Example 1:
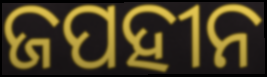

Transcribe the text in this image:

ଜପହୀନ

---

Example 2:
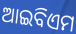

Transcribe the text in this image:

ଆଇବିଏମ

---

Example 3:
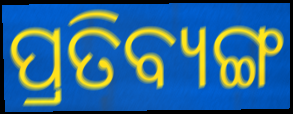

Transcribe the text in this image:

ପ୍ରତିବ୍ୟଙ୍ଗ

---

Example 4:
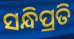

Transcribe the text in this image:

ସନ୍ଧିପ୍ରତି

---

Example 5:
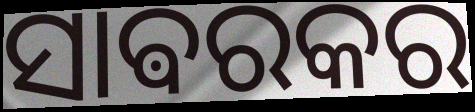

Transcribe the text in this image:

ସାଵରକର